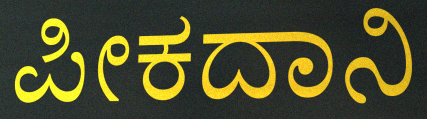
ಪೀಕದಾನಿ